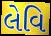
લેવિ